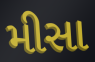
મીસા